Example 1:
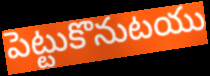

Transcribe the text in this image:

పెట్టుకొనుటయు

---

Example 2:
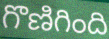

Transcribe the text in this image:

గొణిగింది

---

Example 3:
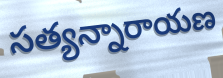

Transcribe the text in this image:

సత్యన్నారాయణ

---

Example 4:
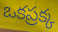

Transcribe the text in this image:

ఒకప్రక్క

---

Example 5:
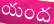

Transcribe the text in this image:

యంద